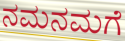
ನಮನಮಗೆ